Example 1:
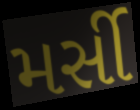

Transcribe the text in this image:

મર્સી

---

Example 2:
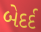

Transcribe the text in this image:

બેદર્દ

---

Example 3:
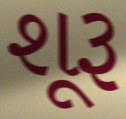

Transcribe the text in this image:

શૂરૂ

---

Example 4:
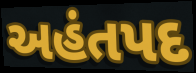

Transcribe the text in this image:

અહંતપદ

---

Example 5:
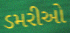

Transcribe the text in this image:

ડમરીઓ